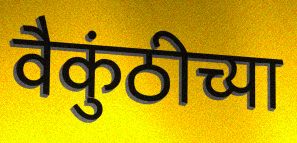
वैकुंठीच्या